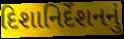
દિશાનિર્દેશનનું